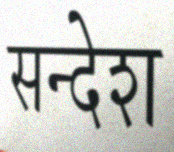
सन्देश